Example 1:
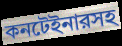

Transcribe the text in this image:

কনটেইনারসহ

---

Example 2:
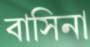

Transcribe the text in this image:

বাসিনা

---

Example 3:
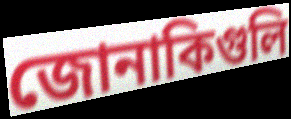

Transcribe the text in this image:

জোনাকিগুলি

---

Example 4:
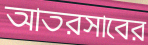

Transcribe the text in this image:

আতরসাবের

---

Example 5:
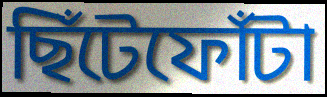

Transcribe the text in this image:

ছিঁটেফোঁটা